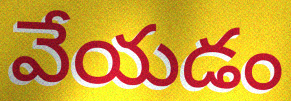
వేయడం